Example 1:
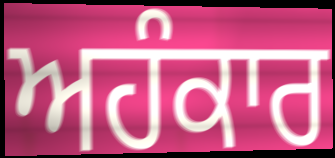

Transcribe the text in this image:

ਅਹੰਕਾਰ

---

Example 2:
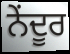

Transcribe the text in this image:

ਨੇਂਦੂਰ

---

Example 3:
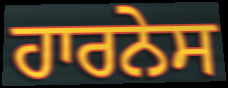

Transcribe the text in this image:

ਹਾਰਨੇਸ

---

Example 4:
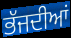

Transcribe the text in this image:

ਭੱਜਦੀਆਂ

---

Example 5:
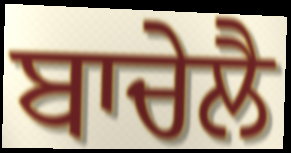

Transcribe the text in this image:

ਬਾਚੇਲੈ